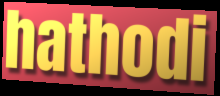
hathodi